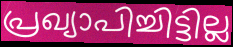
പ്രഖ്യാപിച്ചിട്ടില്ല